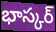
భాస్కర్